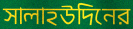
সালাহউদিনের